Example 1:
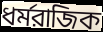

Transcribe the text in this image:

ধর্মরাজিক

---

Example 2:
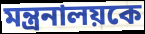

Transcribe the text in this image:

মন্ত্রনালয়কে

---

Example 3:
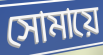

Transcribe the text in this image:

সোমায়ে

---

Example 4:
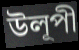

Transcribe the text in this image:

উলূপী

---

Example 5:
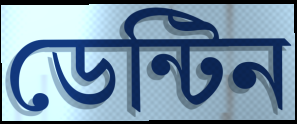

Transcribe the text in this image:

ডেন্টিন